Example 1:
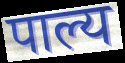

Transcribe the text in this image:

पाल्य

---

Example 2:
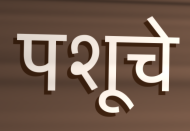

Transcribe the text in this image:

पशूचे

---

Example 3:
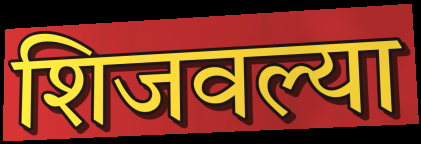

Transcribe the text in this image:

शिजवल्या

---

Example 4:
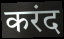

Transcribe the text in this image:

करंद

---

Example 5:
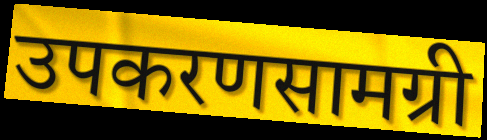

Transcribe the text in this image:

उपकरणसामग्री